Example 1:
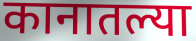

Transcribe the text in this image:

कानातल्या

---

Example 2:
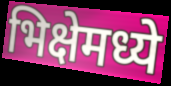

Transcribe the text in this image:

भिक्षेमध्ये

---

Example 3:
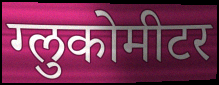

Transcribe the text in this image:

ग्लुकोमीटर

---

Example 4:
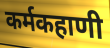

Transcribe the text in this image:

कर्मकहाणी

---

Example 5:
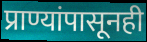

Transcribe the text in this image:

प्राण्यांपासूनही